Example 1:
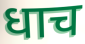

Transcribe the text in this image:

धाच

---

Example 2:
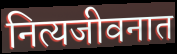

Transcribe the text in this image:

नित्यजीवनात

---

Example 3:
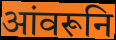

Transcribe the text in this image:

आंवरूनि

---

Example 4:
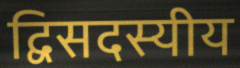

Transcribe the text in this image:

द्विसदस्यीय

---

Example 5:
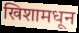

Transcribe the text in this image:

खिशामधून